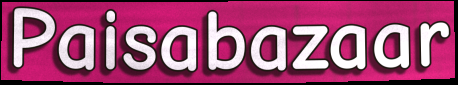
Paisabazaar